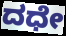
ದಧೇ